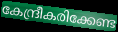
കേന്ദ്രീകരിക്കേണ്ട